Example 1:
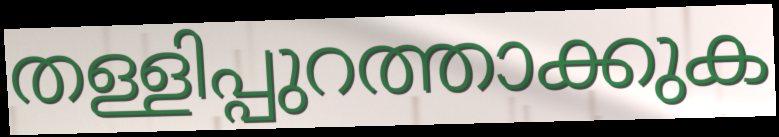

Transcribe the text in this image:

തള്ളിപ്പുറത്താക്കുക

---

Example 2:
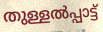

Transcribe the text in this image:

തുള്ളൽപ്പാട്ട്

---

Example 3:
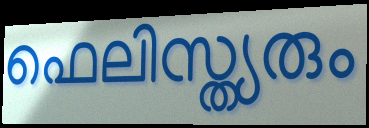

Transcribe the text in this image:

ഫെലിസ്ത്യരും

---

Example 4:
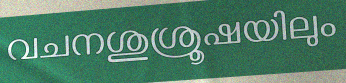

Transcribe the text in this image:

വചനശുശ്രൂഷയിലും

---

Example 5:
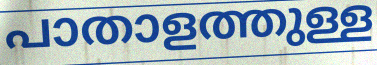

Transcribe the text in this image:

പാതാളത്തുള്ള